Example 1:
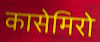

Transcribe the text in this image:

कासेमिरो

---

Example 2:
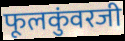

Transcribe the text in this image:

फूलकुंवरजी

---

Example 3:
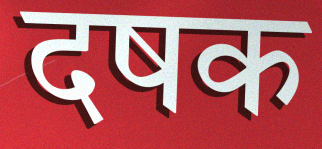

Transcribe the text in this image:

दषक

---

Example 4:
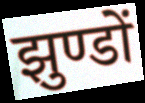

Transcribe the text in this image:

झुण्डों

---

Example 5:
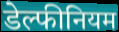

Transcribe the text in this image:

डेल्फीनियम